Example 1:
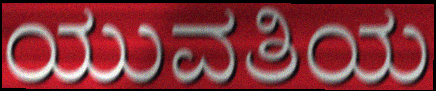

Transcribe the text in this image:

ಯುವತಿಯ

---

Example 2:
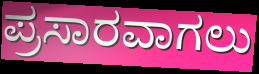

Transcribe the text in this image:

ಪ್ರಸಾರವಾಗಲು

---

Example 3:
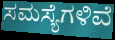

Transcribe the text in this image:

ಸಮಸ್ಯೆಗಳಿವೆ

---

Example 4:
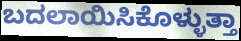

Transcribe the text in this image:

ಬದಲಾಯಿಸಿಕೊಳ್ಳುತ್ತಾ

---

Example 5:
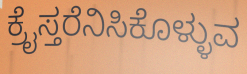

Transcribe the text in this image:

ಕ್ರೈಸ್ತರೆನಿಸಿಕೊಳ್ಳುವ